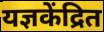
यज्ञकेंद्रित